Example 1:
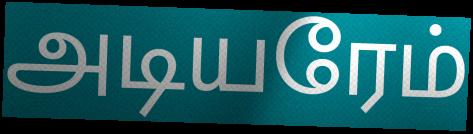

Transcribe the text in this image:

அடியரேம்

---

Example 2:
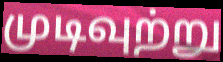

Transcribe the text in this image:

முடிவுற்று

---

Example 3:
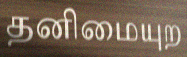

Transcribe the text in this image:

தனிமையுற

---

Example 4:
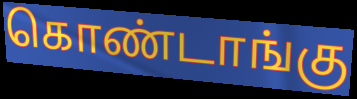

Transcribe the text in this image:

கொண்டாங்கு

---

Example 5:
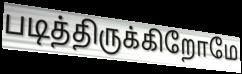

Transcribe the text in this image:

படித்திருக்கிறோமே